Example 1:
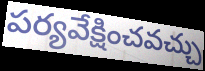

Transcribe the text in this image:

పర్యవేక్షించవచ్చు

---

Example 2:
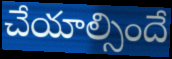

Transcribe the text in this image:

చేయాల్సిందే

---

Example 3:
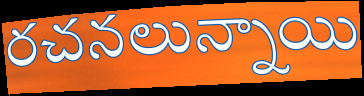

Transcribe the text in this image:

రచనలున్నాయి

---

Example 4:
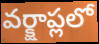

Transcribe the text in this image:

వర్క్షాప్లలో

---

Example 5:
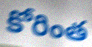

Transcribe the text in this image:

కోరింత